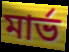
মার্ভ